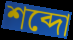
শব্দো